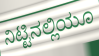
ನಿಟ್ಟಿನಲ್ಲಿಯೂ